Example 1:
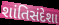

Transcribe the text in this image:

શાંતિસંદેશા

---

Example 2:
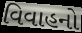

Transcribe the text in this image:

વિવાહનો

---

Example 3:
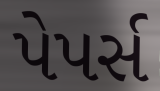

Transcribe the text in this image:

પેપર્સ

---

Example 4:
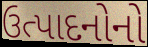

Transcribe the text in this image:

ઉત્પાદનોનો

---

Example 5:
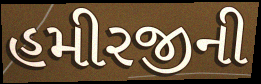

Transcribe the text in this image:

હમીરજીની